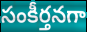
సంకీర్తనగా